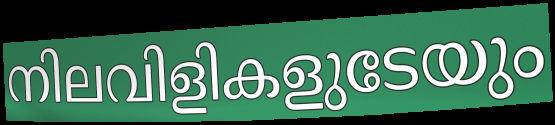
നിലവിളികളുടേയും